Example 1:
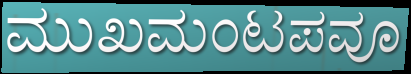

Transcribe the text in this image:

ಮುಖಮಂಟಪವೂ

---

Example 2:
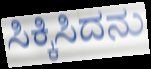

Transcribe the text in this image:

ಸಿಕ್ಕಿಸಿದನು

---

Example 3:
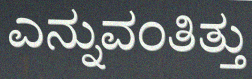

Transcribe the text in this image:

ಎನ್ನುವಂತಿತ್ತು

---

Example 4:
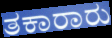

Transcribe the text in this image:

ತಕಾರಾರು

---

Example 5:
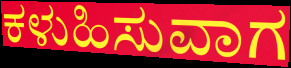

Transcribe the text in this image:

ಕಳುಹಿಸುವಾಗ